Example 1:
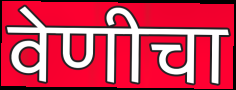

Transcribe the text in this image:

वेणीचा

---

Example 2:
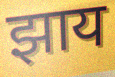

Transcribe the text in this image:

झाय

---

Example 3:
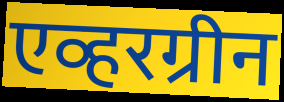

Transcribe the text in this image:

एव्हरग्रीन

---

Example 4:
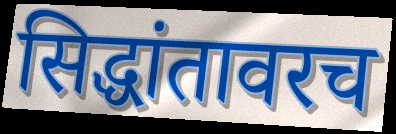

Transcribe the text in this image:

सिद्धांतावरच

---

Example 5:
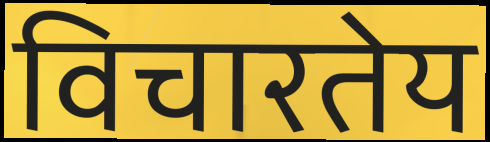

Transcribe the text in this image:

विचारतेय